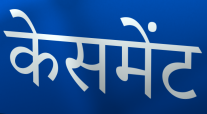
केसमेंट